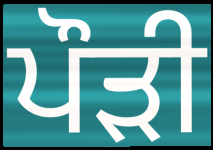
ਪੌੜੀ